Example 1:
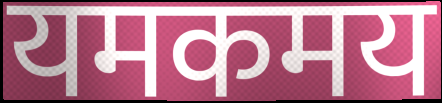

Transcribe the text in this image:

यमकमय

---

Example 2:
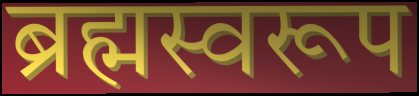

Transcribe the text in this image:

ब्रह्मस्वरूप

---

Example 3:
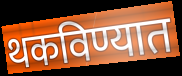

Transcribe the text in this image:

थकविण्यात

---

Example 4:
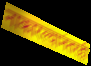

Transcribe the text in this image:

नाकारल्यानंतरही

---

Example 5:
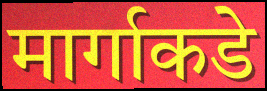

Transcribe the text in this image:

मार्गाकडे